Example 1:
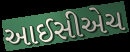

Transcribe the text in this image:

આઈસીએચ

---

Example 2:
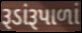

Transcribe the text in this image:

રૂડાંરૂપાળાં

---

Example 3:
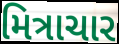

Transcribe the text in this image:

મિત્રાચાર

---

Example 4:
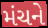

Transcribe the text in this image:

મંચને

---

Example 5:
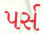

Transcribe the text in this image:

પર્સ